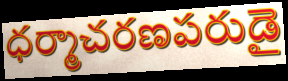
ధర్మాచరణపరుడై